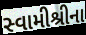
સ્વામીશ્રીના